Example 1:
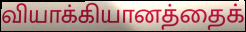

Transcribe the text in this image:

வியாக்கியானத்தைக்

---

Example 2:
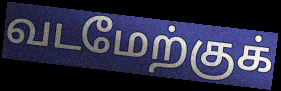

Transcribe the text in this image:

வடமேற்குக்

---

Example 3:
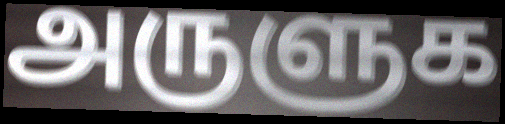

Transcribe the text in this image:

அருளுக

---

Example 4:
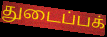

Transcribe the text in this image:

துடைப்பக்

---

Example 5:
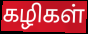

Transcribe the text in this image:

கழிகள்